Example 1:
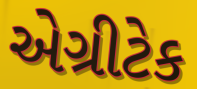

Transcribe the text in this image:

એગ્રીટેક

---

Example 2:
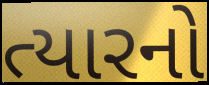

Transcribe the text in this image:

ત્યારનો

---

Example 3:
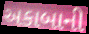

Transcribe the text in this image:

અકાબાની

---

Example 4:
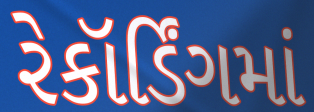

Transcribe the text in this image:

રેકૉર્ડિંગમાં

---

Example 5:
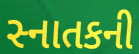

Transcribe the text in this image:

સ્નાતકની